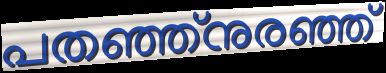
പതഞ്ഞ്നുരഞ്ഞ്